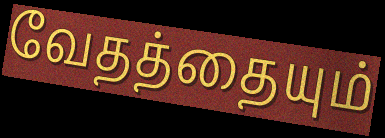
வேதத்தையும்